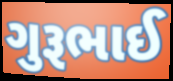
ગુરૂભાઈ